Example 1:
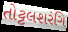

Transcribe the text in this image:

તોટ્ટલશરંગિ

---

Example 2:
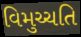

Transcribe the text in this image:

વિમુચ્ચતિ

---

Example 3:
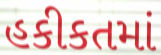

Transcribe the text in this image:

હકીકતમાં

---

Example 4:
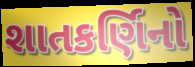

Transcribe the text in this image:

શાતકર્ણિનો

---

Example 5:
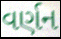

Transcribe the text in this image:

વર્ણન